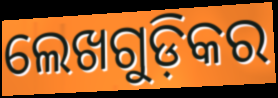
ଲେଖଗୁଡ଼ିକର